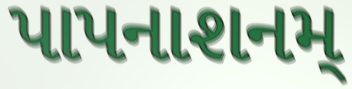
પાપનાશનમ્